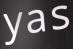
yas